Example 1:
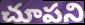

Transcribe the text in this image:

చూపని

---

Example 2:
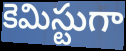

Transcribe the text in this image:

కెమిస్టుగా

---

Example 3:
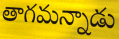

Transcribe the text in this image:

తాగమన్నాడు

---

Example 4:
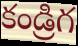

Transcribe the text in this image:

కండ్రిగ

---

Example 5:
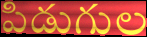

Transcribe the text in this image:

పిడుగుల